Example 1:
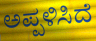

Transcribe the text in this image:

ಅಪ್ಪಳಿಸಿದೆ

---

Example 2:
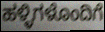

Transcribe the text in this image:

ಹಳ್ಳಿಗಳೊಂದಿಗೆ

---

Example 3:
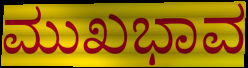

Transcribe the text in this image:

ಮುಖಭಾವ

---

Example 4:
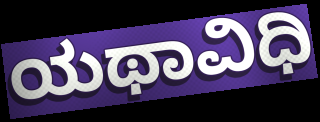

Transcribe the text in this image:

ಯಥಾವಿಧಿ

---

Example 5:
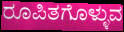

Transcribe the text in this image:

ರೂಪಿತಗೊಳ್ಳುವ